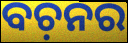
ବଚ଼ନର